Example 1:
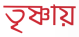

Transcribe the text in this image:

তৃষ্ণায়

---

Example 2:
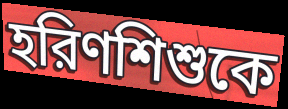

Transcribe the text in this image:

হরিণশিশুকে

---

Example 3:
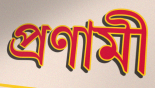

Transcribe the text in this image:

প্রণামী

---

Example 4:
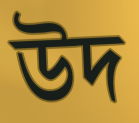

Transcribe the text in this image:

উদ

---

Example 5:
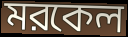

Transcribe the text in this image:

মরকেল